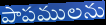
పాపములను